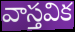
వాస్తవిక